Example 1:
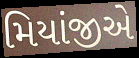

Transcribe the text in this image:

મિયાંજીએ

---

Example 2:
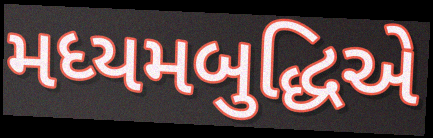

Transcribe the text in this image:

મધ્યમબુદ્ધિએ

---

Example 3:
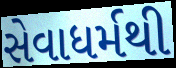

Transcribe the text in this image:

સેવાધર્મથી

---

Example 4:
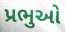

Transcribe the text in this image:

પ્રભુઓ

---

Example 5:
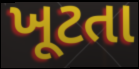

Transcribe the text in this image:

ખૂટતા